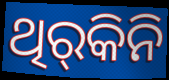
ଥିର୍‍କିନି